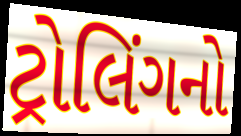
ટ્રોલિંગનો